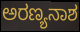
ಅರಣ್ಯನಾಶ